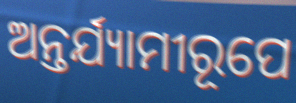
ଅନ୍ତର୍ଯ୍ୟାମୀରୂପେ